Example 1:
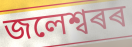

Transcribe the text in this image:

জলেশ্বৰৰ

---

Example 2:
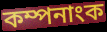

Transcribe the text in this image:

কম্পনাংক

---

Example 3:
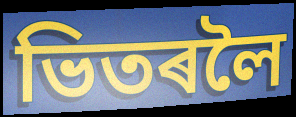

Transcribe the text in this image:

ভিতৰলৈ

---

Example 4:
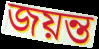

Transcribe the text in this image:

জয়ন্ত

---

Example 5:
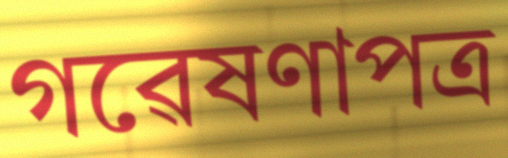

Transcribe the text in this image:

গৱেষণাপত্ৰ